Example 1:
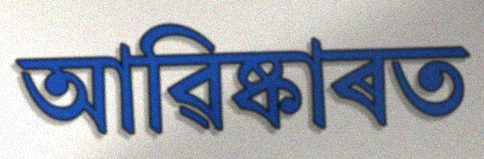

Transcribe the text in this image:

আৱিষ্কাৰত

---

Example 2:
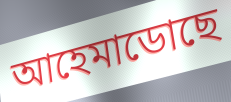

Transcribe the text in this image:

আহেমাডোছে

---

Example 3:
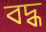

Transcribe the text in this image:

বদ্ধ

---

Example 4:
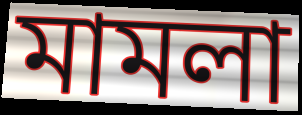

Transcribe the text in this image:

মামলা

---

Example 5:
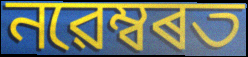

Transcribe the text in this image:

নৱেম্বৰত